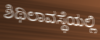
ಶಿಥಿಲಾವಸ್ಥೆಯಲ್ಲಿ